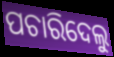
ପଚାରିଦେଲୁ